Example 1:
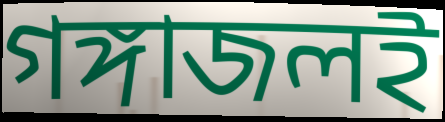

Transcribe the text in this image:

গঙ্গাজলই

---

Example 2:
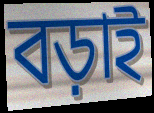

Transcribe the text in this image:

বড়াই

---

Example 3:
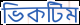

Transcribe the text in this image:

ভিকটিম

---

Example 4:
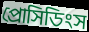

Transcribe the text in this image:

প্রোসিডিংস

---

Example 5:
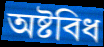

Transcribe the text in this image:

অষ্টবিধ